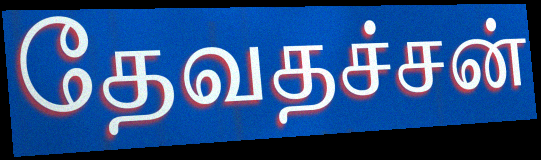
தேவதச்சன்